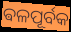
ଵଳପୂର୍ବକ